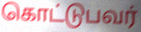
கொட்டுபவர்